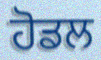
ਹੋਡਲ